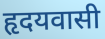
हृदयवासी